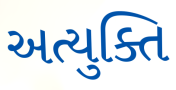
અત્યુક્તિ